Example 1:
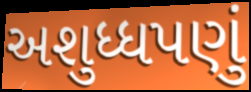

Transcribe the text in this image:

અશુધ્ધપણું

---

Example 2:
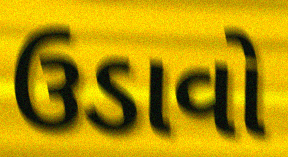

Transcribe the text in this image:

ઉડાવો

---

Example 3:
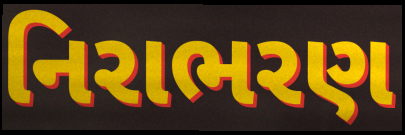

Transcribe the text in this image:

નિરાભરણ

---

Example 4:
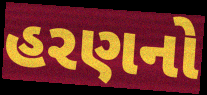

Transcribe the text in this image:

હરણનો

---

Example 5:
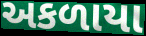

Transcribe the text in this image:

અકળાયા